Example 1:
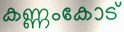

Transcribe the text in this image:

കണ്ണംകോട്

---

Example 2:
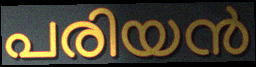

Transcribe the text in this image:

പരിയൻ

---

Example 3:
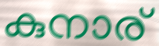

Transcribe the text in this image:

കുനാര്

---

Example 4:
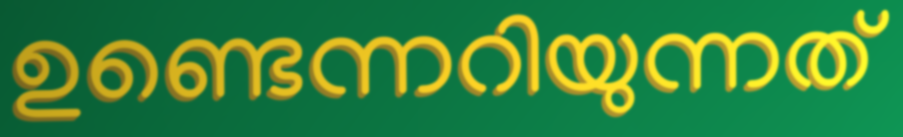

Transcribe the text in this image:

ഉണ്ടെന്നറിയുന്നത്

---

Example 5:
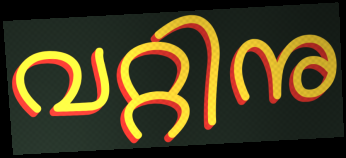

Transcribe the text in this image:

വറ്റിനു